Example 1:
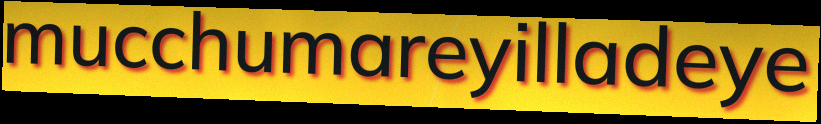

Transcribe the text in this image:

mucchumareyilladeye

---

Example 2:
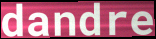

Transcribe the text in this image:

dandre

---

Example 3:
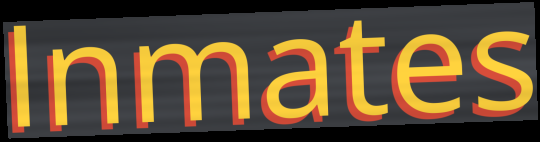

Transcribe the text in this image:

Inmates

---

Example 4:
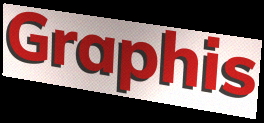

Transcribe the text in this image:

Graphis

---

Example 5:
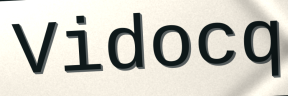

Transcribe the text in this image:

Vidocq